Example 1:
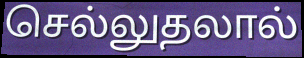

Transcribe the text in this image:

செல்லுதலால்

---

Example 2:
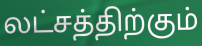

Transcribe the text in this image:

லட்சத்திற்கும்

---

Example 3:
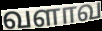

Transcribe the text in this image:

வளாவ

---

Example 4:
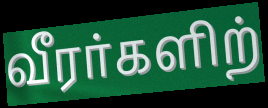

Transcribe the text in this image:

வீரர்களிற்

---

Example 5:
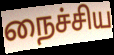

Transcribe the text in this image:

நைச்சிய